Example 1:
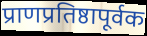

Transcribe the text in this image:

प्राणप्रतिष्ठापूर्वक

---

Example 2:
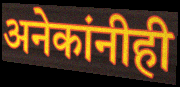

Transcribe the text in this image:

अनेकांनीही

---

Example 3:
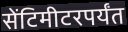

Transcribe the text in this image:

सेंटिमीटरपर्यंत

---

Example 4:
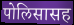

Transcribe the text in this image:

पोलिसासह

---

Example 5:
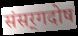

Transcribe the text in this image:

संसर्गदोष